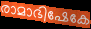
രാമാഭിഷേകേ